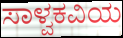
ಸಾಳ್ವಕವಿಯ